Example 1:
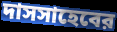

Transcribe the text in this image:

দাসসাহেবের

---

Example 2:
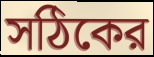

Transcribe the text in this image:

সঠিকের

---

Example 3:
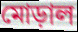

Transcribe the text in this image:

মোড়াল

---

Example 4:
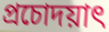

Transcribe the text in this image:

প্রচোদয়াৎ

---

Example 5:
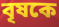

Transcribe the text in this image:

বৃষকে